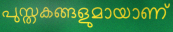
പുസ്തകങ്ങളുമായാണ്